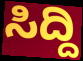
ಸಿದ್ದಿ